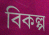
বিকল্প